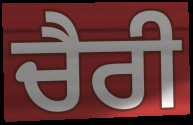
ਚੈਰੀ